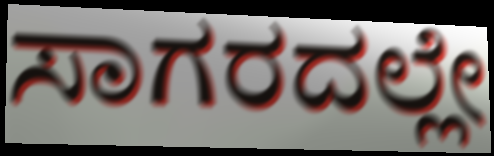
ಸಾಗರದಲ್ಲೇ